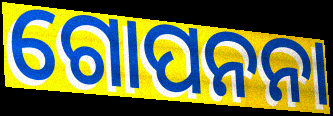
ଗୋପନନା